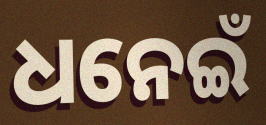
ଧନେଇଁ